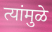
त्यांमुळे